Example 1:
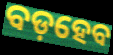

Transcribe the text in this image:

ବଡ଼ହେବ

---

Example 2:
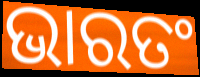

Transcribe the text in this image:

ଭାରତଂ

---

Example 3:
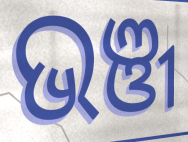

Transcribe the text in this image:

ଭଞ୍ଜ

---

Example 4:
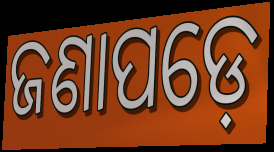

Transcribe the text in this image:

ଜଣାପଡ଼େ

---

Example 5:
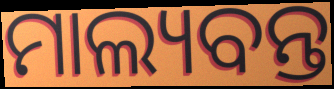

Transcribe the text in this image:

ମାଲ୍ୟବନ୍ତ